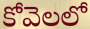
కోవెలలో